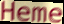
Heme